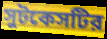
সুটকেসটির